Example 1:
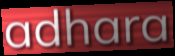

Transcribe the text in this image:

adhara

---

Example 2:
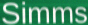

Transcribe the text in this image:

Simms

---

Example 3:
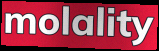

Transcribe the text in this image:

molality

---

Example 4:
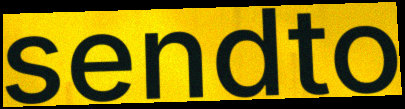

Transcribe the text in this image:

sendto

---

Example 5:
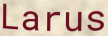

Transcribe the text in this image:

Larus